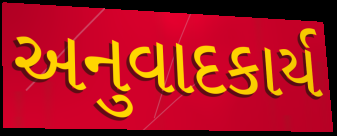
અનુવાદકાર્ય